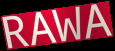
RAWA